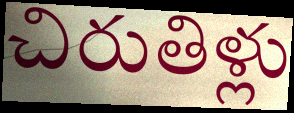
చిరుతిళ్లు